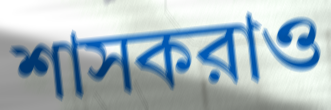
শাসকরাও